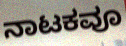
ನಾಟಕವೂ